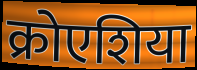
क्रोएशिया